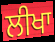
ਲੀਖਾ